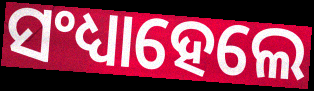
ସଂଧ୍ୟାହେଲେ